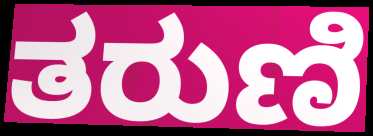
ತರುಣಿ